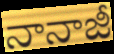
నానాజీ